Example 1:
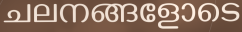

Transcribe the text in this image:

ചലനങ്ങളോടെ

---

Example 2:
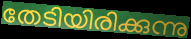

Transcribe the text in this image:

തേടിയിരിക്കുന്നു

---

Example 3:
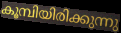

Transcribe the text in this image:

കൂമ്പിയിരിക്കുന്നു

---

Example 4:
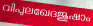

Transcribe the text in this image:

വിപുലഖേദജുഷാം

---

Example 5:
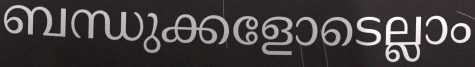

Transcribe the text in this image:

ബന്ധുക്കളോടെല്ലാം